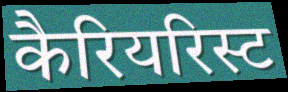
कैरियरिस्ट